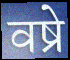
वष्रे